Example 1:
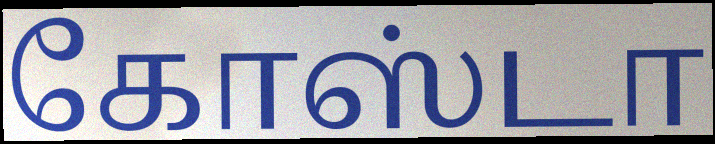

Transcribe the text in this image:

கோஸ்டா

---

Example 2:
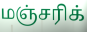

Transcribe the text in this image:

மஞ்சரிக்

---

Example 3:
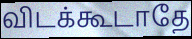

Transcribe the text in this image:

விடக்கூடாதே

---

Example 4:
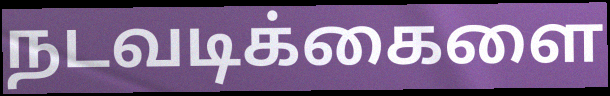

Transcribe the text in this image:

நடவடிக்கைளை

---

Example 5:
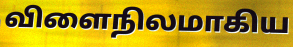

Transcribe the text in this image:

விளைநிலமாகிய